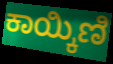
ಕಾಯ್ಕಿಣಿ